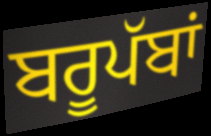
ਬਰੂਪੱਬਾਂ